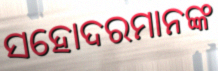
ସହୋଦରମାନଙ୍କ